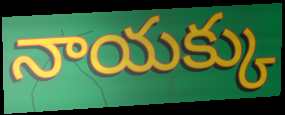
నాయక్కు